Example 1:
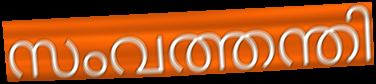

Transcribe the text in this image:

സംവത്തന്തി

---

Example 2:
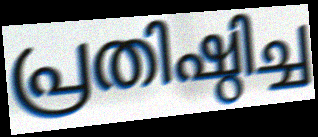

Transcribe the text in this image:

പ്രതിഷ്ഠിച്ച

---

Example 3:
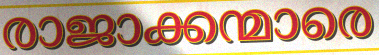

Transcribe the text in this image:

രാജാക്കന്മാരെ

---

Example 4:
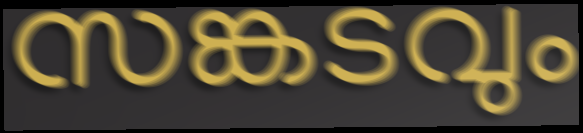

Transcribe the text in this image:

സങ്കടവും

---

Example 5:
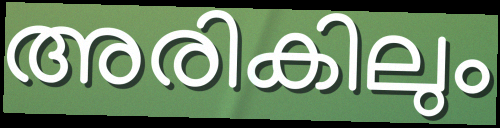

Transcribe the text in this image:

അരികിലും